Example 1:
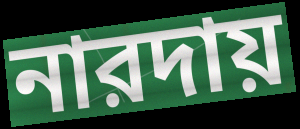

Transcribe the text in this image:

নারদায়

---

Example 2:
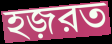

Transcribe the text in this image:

হজ়রত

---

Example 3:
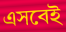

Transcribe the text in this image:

এসবেই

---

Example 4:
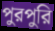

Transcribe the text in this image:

পুরপুরি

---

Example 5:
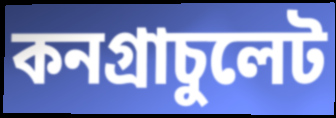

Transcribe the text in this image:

কনগ্রাচুলেট